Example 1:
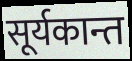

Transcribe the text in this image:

सूर्यकान्त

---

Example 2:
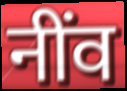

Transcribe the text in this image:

नींव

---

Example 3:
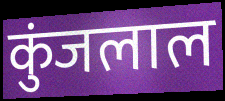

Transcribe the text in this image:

कुंजलाल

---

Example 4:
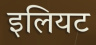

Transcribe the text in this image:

इलियट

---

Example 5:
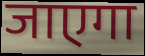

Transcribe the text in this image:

जाएगा